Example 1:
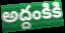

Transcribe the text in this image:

అద్దంకికి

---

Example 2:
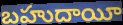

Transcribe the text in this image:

బహుదాయీ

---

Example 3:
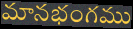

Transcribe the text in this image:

మానభంగము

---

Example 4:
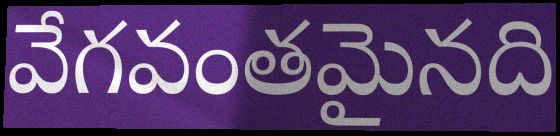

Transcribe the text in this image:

వేగవంతమైనది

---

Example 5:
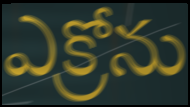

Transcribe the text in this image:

ఎక్రోను